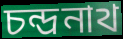
চন্দ্রনাথ